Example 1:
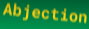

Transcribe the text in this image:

Abjection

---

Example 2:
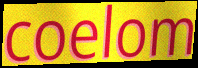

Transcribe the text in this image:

coelom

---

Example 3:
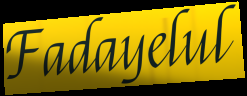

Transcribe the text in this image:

Fadayelul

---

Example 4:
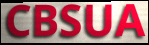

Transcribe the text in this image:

CBSUA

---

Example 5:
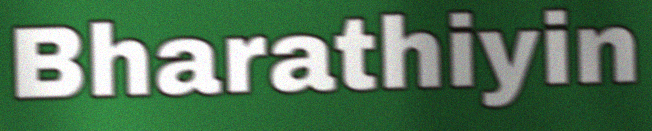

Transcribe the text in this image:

Bharathiyin